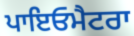
ਪਾਇਓਮੈਟਰਾ